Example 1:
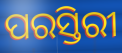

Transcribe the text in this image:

ପରସ୍ତିରୀ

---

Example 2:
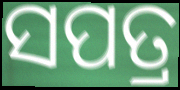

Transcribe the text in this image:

ସପତ୍ର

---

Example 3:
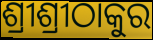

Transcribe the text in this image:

ଶ୍ରୀଶ୍ରୀଠାକୁର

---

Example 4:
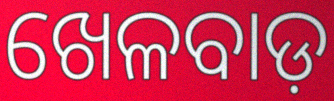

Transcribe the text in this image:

ଖେଳବାଡ଼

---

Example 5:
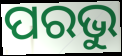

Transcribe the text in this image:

ପରଭୁ